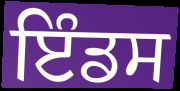
ਇੰਡਸ